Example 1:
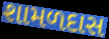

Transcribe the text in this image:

શામળદાસ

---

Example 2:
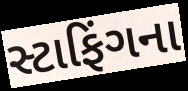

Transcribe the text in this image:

સ્ટાફિંગના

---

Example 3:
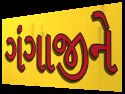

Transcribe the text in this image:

ગંગાજીને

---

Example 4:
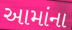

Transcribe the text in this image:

આમાંના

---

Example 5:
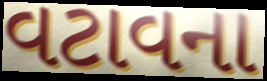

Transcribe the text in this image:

વટાવના